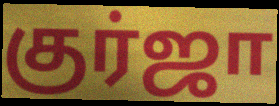
குர்ஜா